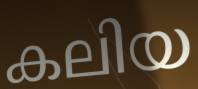
കലിയ